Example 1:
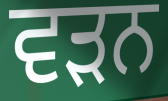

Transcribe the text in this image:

ਵੜਨ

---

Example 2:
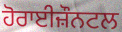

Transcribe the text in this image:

ਹੋਰਾਈਜ਼ੌਨਟਲ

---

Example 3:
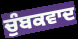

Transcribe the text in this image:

ਚੁੰਬਕਵਾਦ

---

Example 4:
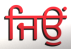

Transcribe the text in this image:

ਜਿਉਂ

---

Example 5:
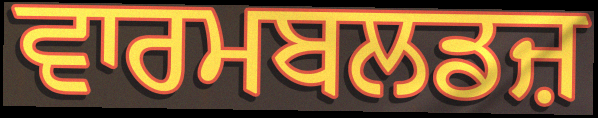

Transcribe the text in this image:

ਵਾਰਮਬਲਡਜ਼